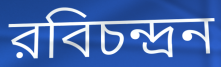
রবিচন্দ্রন